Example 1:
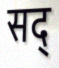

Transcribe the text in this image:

सद्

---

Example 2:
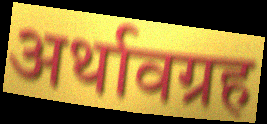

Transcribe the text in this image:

अर्थावग्रह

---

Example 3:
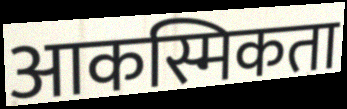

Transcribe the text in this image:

आकस्मिकता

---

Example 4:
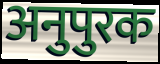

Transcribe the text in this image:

अनुपुरक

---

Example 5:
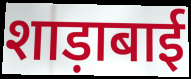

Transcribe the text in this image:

शाड़ाबाई